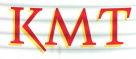
KMT